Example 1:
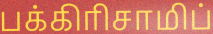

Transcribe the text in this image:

பக்கிரிசாமிப்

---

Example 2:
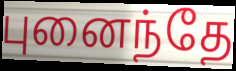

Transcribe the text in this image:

புனைந்தே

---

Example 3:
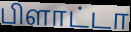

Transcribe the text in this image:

பிளாட்டா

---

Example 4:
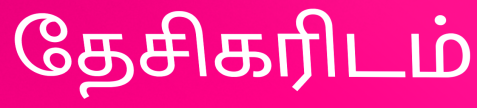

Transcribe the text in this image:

தேசிகரிடம்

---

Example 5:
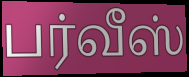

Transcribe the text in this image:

பர்வீஸ்